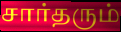
சார்தரும்